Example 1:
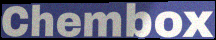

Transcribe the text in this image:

Chembox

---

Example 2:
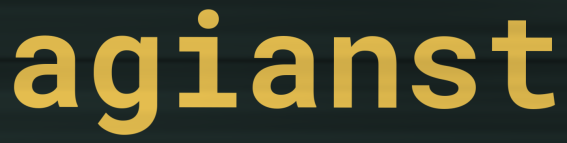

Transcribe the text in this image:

agianst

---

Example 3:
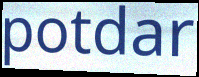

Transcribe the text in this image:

potdar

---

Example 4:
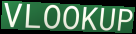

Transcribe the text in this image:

VLOOKUP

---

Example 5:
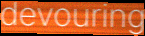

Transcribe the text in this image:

devouring